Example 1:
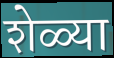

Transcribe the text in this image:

शेळ्या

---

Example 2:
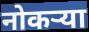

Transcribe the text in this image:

नोकऱ्या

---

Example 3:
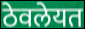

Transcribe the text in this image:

ठेवलेयत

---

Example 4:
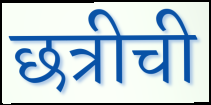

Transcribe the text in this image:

छत्रीची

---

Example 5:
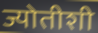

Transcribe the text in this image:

ज्योतीशी